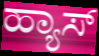
ಹ್ಯಾಸ್